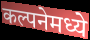
कल्पनेमध्ये